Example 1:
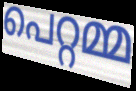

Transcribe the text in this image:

പെറ്റമ്മ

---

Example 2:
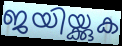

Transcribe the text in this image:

ജയിയ്ക്കുക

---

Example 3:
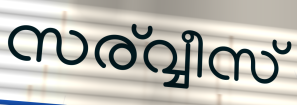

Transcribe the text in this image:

സര്വ്വീസ്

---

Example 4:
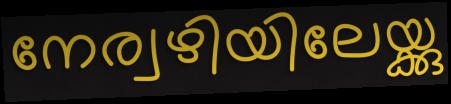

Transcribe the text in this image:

നേര്വഴിയിലേയ്ക്കു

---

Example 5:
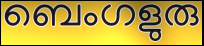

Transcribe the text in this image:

ബെംഗളുരു